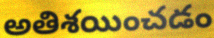
అతిశయించడం